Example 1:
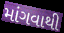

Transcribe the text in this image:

માંગવાથી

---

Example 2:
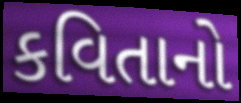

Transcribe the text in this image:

કવિતાનો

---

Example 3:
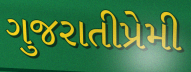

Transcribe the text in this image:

ગુજરાતીપ્રેમી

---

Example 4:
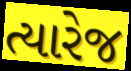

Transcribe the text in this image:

ત્યારેજ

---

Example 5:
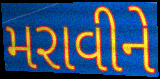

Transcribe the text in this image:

મરાવીને